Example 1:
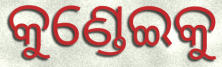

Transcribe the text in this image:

କୁଣ୍ଡେଇକୁ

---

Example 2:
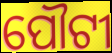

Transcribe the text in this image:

ପୌଟୀ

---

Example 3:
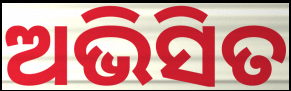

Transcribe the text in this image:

ଅଭିସିତ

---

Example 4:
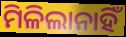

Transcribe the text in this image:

ମିଳିଲାନାହିଁ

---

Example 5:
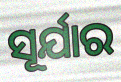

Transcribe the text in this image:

ସୂର୍ଯାର